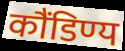
कौंडिण्य